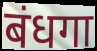
बंधगा